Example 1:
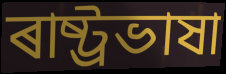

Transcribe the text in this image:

ৰাষ্ট্ৰভাষা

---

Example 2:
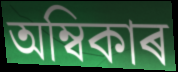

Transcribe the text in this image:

অম্বিকাৰ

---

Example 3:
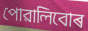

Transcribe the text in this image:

পোৱালিবোৰ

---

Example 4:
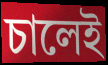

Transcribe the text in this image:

চালেই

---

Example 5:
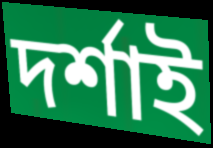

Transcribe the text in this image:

দৰ্শাই